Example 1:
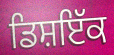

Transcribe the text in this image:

ਡਿਸ਼ਇੱਕ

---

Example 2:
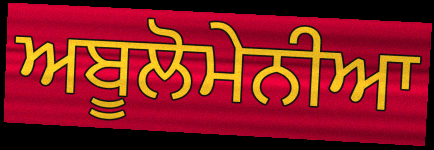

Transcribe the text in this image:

ਅਬੂਲੋਮੇਨੀਆ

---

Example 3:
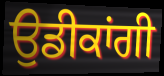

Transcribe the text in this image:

ਉਡੀਕਾਂਗੀ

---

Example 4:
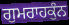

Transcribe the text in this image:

ਗੁਮਰਾਹਕੁੰਨ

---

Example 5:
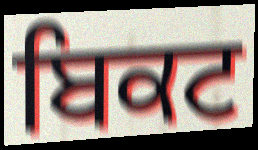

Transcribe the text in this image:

ਬਿਕਟ